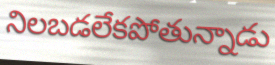
నిలబడలేకపోతున్నాడు